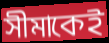
সীমাকেই